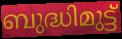
ബുദ്ധിമുട്ട്